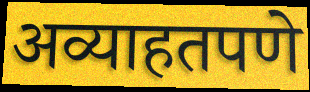
अव्याहतपणे